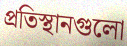
প্রতিস্থানগুলো